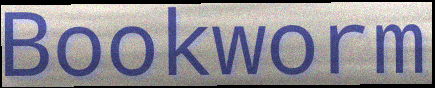
Bookworm